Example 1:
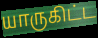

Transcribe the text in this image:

யாருகிட்ட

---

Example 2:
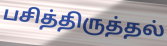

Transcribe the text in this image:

பசித்திருத்தல்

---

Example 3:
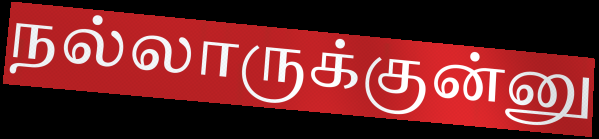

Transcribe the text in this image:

நல்லாருக்குன்னு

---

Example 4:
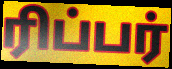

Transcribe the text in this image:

ரிப்பர்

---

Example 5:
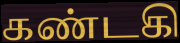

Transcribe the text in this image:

கண்டகி